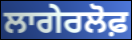
ਲਾਗੇਰਲੋਫ਼